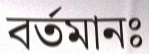
বর্তমানঃ